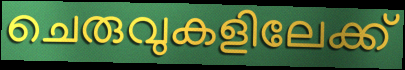
ചെരുവുകളിലേക്ക്